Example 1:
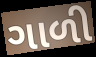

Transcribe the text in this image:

ગાળી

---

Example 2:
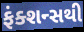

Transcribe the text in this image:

ફંક્શન્સથી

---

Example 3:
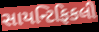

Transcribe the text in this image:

સાયન્ટિફિકલી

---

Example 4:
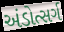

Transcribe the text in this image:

અંડોત્સર્ગ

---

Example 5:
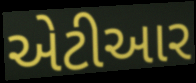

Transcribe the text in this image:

એટીઆર